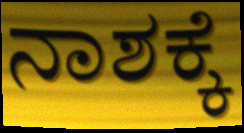
ನಾಶಕ್ಕೆ